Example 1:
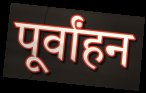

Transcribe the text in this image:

पूर्वांहन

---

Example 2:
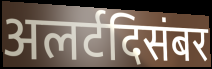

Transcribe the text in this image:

अलर्टदिसंबर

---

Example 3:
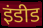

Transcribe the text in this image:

इंडीड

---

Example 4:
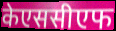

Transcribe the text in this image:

केएससीएफ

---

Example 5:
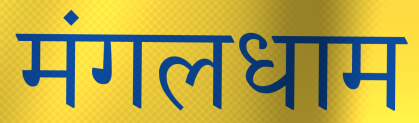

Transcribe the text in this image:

मंगलधाम